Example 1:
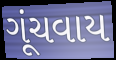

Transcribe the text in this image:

ગૂંચવાય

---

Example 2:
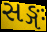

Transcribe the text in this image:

સઙ્ગઃ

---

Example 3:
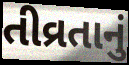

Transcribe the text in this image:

તીવ્રતાનું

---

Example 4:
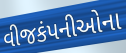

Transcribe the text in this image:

વીજકંપનીઓના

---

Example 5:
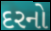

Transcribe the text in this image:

દરનો